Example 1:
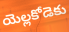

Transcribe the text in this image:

యెల్లకోడెకు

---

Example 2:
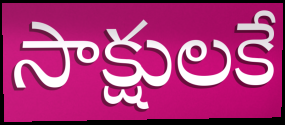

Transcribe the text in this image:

సాక్షులకే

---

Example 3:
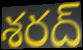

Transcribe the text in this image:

శరద్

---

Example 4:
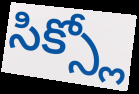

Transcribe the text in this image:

సిక్స్లో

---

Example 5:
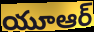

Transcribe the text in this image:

యూఆర్